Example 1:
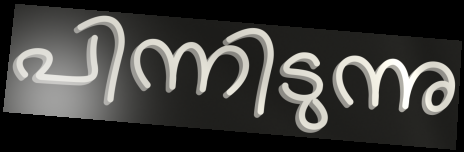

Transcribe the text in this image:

പിന്നിടുന്നു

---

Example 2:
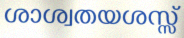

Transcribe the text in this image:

ശാശ്വതയശസ്സ്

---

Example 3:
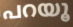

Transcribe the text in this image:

പറയൂ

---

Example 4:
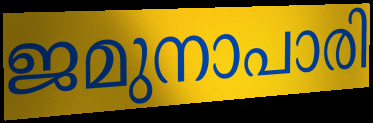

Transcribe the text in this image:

ജമുനാപാരി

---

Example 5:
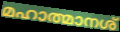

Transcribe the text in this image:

മഹാത്മാനശ്